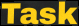
Task